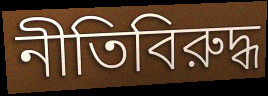
নীতিবিরুদ্ধ